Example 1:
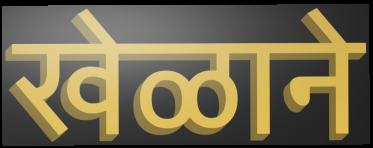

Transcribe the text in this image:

खेळाने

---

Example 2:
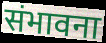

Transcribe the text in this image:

संभावना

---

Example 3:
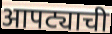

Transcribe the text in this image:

आपट्याची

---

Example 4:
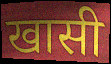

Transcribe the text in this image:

खासी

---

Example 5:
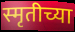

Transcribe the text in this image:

स्मृतीच्या